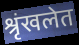
श्रृंखलेत